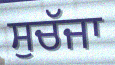
ਸੁਚੱਜਾ